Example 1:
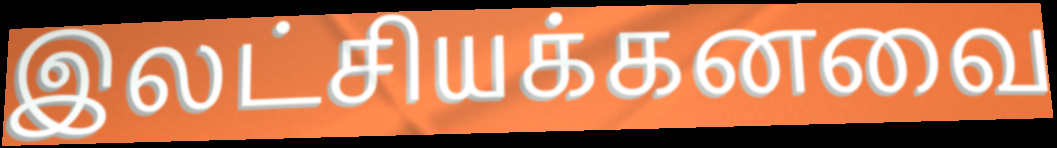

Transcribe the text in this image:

இலட்சியக்கனவை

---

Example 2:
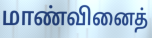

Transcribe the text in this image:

மாண்வினைத்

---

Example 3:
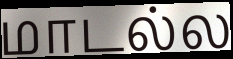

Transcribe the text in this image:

மாடல்ல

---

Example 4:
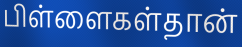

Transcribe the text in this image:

பிள்ளைகள்தான்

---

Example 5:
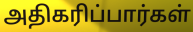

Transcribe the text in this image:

அதிகரிப்பார்கள்